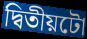
দ্বিতীয়টো